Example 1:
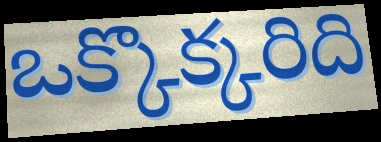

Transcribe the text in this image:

ఒక్కొక్కరిది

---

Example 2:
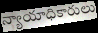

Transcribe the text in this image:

న్యాయాధికారులు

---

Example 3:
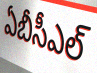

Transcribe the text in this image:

ఏబీసీఎల్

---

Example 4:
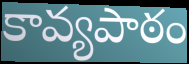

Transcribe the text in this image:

కావ్యపాఠం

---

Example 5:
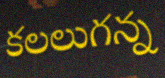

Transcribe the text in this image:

కలలుగన్న